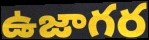
ఉజాగర